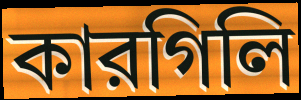
কারগিলি